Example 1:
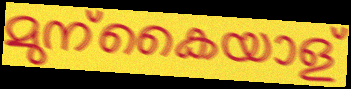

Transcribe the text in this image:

മുന്കൈയാള്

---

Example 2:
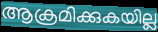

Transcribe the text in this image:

ആക്രമിക്കുകയില്ല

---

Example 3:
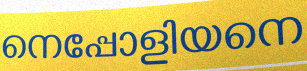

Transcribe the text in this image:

നെപ്പോളിയനെ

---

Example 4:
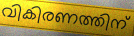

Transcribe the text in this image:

വികിരണത്തിന്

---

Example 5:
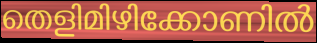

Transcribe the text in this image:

തെളിമിഴിക്കോണിൽ